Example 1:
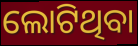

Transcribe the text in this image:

ଲୋଟିଥିବା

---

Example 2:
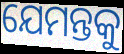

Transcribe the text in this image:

ଯେମନ୍ତକୁ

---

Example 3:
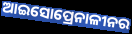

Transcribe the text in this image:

ଆଇସୋପ୍ରେନାଳୀନର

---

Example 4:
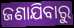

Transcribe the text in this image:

ଜଣାଯିବାରୁ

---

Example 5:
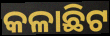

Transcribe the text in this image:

କଳାଛିଟ